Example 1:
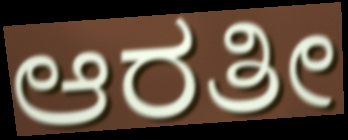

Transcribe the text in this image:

ಆರತೀ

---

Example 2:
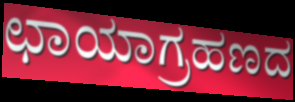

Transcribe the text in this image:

ಛಾಯಾಗ್ರಹಣದ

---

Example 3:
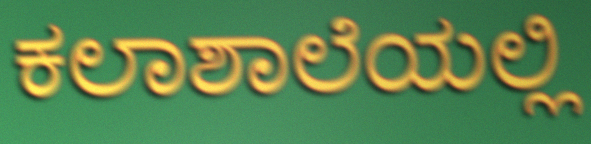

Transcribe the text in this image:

ಕಲಾಶಾಲೆಯಲ್ಲಿ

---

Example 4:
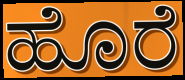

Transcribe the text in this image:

ಹೊರೆ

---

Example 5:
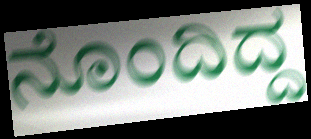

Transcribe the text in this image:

ನೊಂದಿದ್ದ